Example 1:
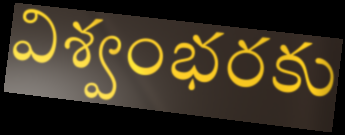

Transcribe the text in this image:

విశ్వంభరకు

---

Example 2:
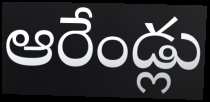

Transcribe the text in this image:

ఆరేండ్లు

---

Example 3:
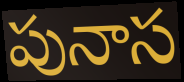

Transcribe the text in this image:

పునాస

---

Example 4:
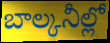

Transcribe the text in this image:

బాల్కనీల్లో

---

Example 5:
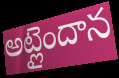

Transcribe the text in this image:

అట్లైందాన